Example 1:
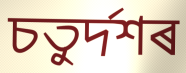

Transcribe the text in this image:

চতুৰ্দশৰ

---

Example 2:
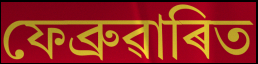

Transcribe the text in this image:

ফেব্ৰুৱাৰিত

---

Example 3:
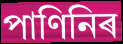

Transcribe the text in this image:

পাণিনিৰ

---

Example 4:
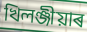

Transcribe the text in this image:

খিলঞ্জীয়াৰ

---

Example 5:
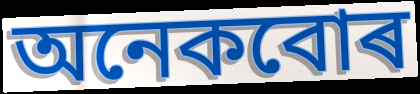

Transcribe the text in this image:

অনেকবোৰ